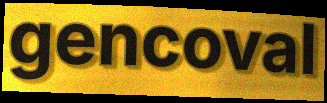
gencoval